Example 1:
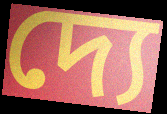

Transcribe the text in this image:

দ্যে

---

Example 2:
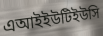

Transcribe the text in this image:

এআইইউটিইউসি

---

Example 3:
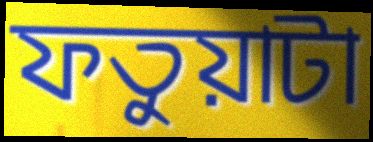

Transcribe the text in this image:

ফতুয়াটা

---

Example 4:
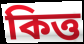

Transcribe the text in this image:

কিত্ত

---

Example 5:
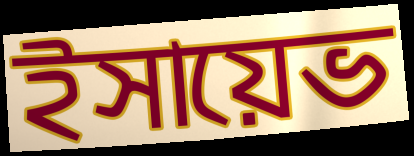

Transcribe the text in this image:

ইসায়েভ